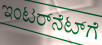
ಇಂಟರ್‌ನೆಟ್‌ಗೆ